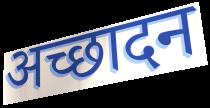
अच्छादन